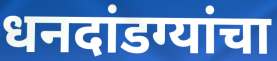
धनदांडग्यांचा